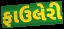
ફાઉલેરી